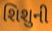
શિશુની